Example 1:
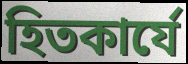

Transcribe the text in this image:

হিতকার্যে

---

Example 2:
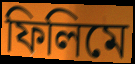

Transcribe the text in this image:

ফিলিমে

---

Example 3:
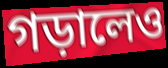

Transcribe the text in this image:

গড়ালেও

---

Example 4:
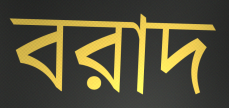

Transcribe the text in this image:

বরাদ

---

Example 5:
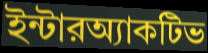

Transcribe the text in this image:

ইন্টারঅ্যাকটিভ